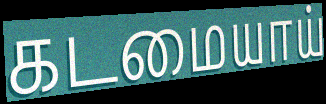
கடமையாய்